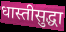
धास्तीसुद्धा